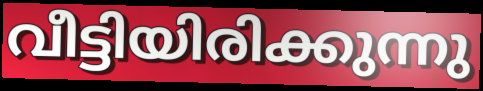
വീട്ടിയിരിക്കുന്നു